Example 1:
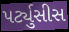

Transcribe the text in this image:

પર્ટ્યુસીસ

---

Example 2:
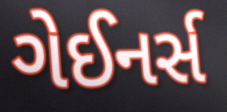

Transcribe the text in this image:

ગેઈનર્સ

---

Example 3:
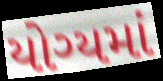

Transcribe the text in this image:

યોગ્યમાં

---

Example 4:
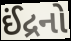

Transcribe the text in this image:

ઈંદ્રનો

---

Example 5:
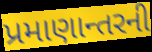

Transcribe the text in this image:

પ્રમાણાન્તરની